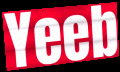
Yeeb